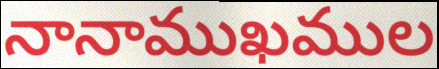
నానాముఖముల